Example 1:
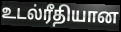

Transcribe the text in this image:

உடல்ரீதியான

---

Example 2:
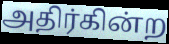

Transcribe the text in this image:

அதிர்கின்ற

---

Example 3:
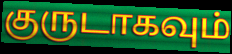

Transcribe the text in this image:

குருடாகவும்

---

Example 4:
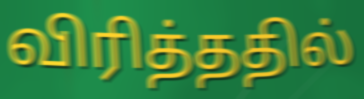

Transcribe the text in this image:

விரித்ததில்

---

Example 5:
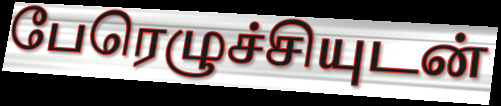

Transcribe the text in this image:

பேரெழுச்சியுடன்